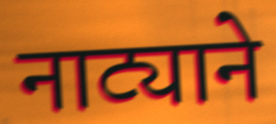
नाट्याने